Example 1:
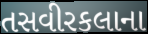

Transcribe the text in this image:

તસવીરકલાના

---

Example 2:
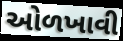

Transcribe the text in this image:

ઓળખાવી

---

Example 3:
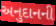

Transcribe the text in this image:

અનુદાનની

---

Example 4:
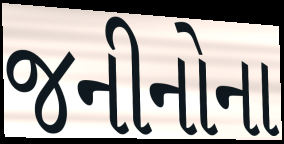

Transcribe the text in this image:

જનીનોના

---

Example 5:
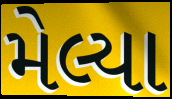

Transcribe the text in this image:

મેલ્યા